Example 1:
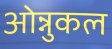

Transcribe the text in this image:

ओन्नुकल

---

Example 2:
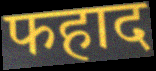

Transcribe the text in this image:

फहाद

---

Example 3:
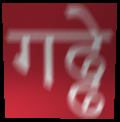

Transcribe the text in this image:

गढ्ढे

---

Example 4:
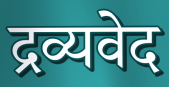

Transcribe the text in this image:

द्रव्यवेद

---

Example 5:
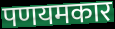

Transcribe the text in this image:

पणयमकार